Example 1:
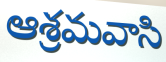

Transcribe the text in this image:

ఆశ్రమవాసి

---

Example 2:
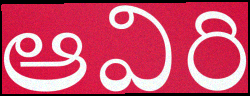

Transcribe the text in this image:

ఆవిరి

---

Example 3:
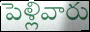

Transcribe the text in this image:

పెళ్లివారు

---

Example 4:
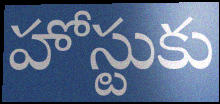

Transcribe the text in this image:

హోస్టుకు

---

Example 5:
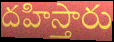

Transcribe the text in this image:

దహిస్తారు